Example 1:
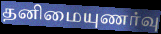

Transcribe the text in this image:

தனிமையுணர்வு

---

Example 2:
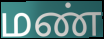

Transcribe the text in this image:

மண்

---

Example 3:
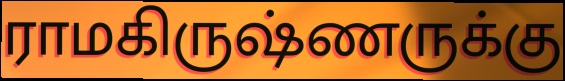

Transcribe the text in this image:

ராமகிருஷ்ணருக்கு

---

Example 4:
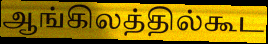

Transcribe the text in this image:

ஆங்கிலத்தில்கூட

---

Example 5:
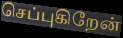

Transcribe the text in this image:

செப்புகிறேன்